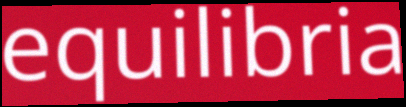
equilibria